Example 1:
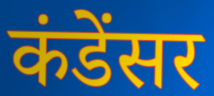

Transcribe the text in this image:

कंडेंसर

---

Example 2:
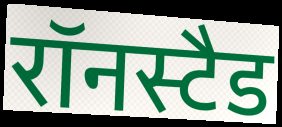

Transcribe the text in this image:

रॉनस्टैड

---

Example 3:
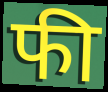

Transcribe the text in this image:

फी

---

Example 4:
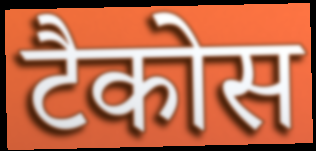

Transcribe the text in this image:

टैकोस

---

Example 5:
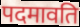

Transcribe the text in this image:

पदमावति